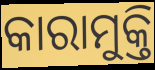
କାରାମୁକ୍ତି